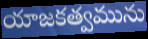
యాజకత్వమును